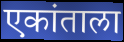
एकांताला